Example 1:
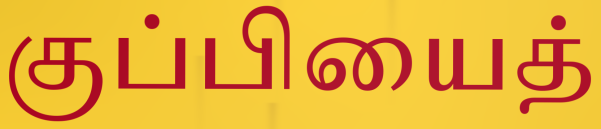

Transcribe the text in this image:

குப்பியைத்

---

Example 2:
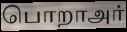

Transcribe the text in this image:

பொறாஅர்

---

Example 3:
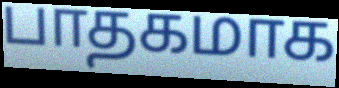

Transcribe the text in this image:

பாதகமாக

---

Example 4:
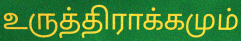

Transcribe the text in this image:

உருத்திராக்கமும்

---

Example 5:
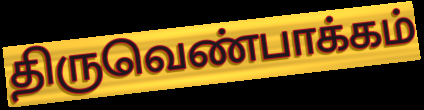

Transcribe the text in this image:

திருவெண்பாக்கம்